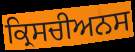
ਕ੍ਰਿਸਚੀਅਨਸ